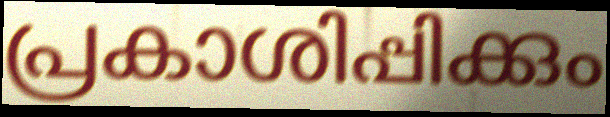
പ്രകാശിപ്പിക്കും